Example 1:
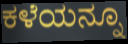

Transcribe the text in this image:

ಕಳೆಯನ್ನೂ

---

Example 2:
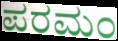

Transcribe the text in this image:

ಪರಮಂ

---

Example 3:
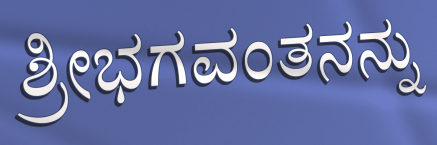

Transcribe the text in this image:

ಶ್ರೀಭಗವಂತನನ್ನು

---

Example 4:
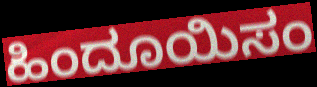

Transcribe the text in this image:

ಹಿಂದೂಯಿಸಂ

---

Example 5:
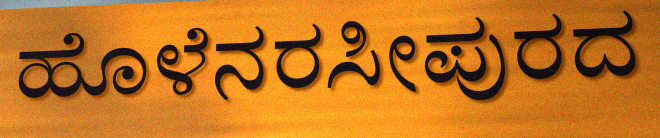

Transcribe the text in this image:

ಹೊಳೆನರಸೀಪುರದ